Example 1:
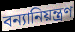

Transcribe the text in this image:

বন্যানিয়ন্ত্রণ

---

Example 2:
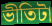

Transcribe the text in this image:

ভীতিটা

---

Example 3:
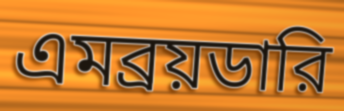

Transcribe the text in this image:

এমব্রয়ডারি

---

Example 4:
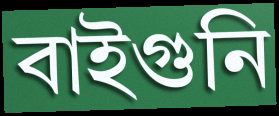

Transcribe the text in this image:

বাইগুনি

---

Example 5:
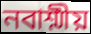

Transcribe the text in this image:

নবাশ্মীয়